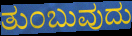
ತುಂಬುವುದು